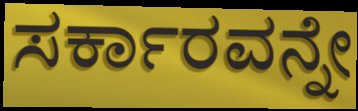
ಸರ್ಕಾರವನ್ನೇ